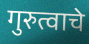
गुरुत्वाचे